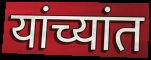
यांच्यांत